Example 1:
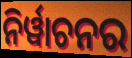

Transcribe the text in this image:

ନିର୍ୱାଚନର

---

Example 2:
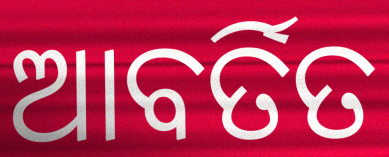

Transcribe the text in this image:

ଆବର୍ତିତ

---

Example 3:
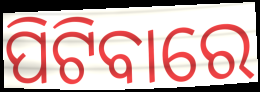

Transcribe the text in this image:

ପିଟିବାରେ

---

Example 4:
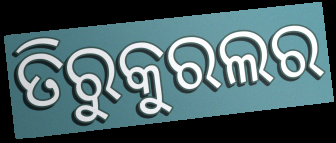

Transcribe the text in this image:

ତିରୁକୁରଲର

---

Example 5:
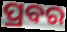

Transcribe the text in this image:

ପ୍ରବର